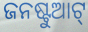
ଜନଷ୍ଟୁଆଟ୍